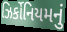
ઝિર્કોનિયમનું